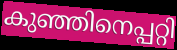
കുഞ്ഞിനെപ്പറ്റി